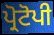
ਪ੍ਰੋਟੋਪੀ